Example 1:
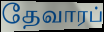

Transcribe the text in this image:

தேவாரப்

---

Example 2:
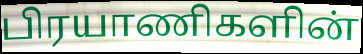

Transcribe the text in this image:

பிரயாணிகளின்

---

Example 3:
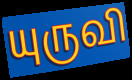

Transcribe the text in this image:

யுருவி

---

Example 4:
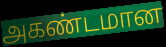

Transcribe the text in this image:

அகண்டமான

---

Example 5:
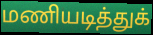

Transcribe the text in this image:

மணியடித்துக்